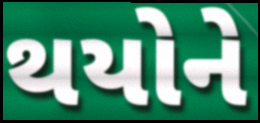
થયોને